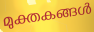
മുക്തകങ്ങൾ